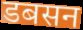
डबसन